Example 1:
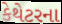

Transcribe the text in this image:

કેથેટરના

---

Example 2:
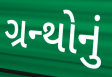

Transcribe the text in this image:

ગ્રન્થોનું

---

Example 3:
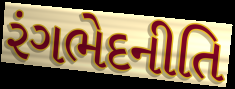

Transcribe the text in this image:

રંગભેદનીતિ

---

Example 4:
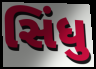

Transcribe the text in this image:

સિંધુ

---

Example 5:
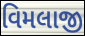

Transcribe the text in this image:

વિમલાજી